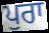
ਪੁਰਾ